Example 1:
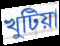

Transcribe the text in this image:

খুটিয়া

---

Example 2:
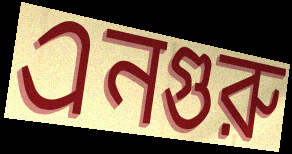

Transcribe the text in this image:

এনগুরু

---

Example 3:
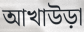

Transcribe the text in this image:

আখাউড়া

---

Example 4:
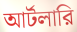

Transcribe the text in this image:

আর্টলারি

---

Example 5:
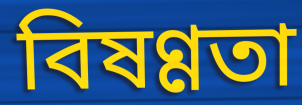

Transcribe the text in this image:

বিষণ্ণতা